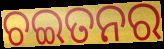
ଚଇତନର